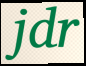
jdr